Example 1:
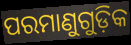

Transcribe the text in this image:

ପରମାଣୁଗୁଡ଼ିକ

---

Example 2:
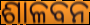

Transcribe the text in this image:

ଶାଳବନ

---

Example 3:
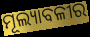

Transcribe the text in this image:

ମୂଲ୍ୟାବଳୀର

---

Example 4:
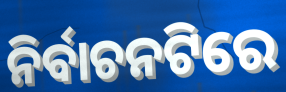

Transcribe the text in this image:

ନିର୍ବାଚନଟିରେ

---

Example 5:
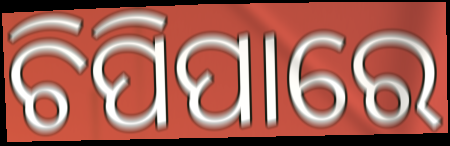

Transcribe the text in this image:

ଚିପିପାରେ